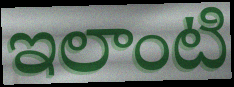
ఇలాంటి